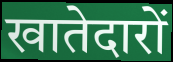
खातेदारों